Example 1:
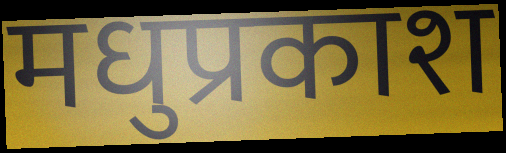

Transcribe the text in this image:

मधुप्रकाश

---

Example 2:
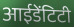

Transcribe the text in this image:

आईडेंटिटी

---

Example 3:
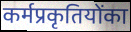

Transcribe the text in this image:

कर्मप्रकृतियोंका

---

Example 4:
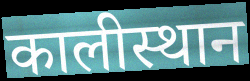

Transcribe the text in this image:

कालीस्थान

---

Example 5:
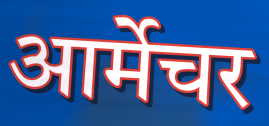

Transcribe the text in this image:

आर्मेचर